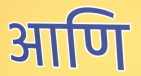
आणि